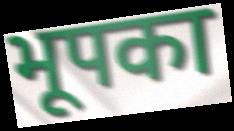
भूपका